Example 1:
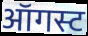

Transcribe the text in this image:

ऑगस्ट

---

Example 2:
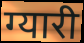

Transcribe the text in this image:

ग्यारी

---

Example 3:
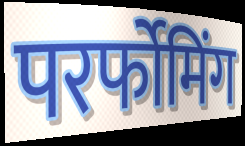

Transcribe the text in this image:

परर्फोमिंग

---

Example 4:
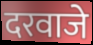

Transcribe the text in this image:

दरवाजे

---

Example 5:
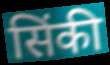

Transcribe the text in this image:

सिंकी